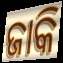
ଜାକି